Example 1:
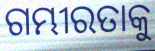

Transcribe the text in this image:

ଗମ୍ଭୀରତାକୁ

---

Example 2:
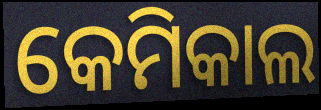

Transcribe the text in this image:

କେମିକାଲ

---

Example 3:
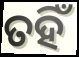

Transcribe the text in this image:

ତହିଁ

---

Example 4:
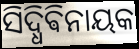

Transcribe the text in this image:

ସିଦ୍ଧିଵିନାୟକ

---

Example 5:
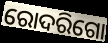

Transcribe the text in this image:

ରୋଦରିଗୋ